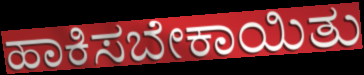
ಹಾಕಿಸಬೇಕಾಯಿತು